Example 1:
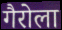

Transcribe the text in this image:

गैरोला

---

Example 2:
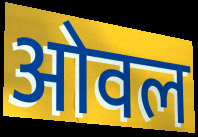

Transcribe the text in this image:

ओवल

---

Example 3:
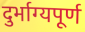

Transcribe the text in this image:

दुर्भाग्यपूर्ण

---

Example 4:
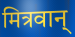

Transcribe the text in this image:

मित्रवान्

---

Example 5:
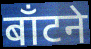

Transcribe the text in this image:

बाँटने